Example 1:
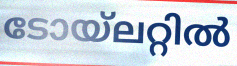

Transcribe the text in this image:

ടോയ്ലറ്റിൽ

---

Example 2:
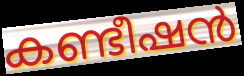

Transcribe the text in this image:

കണ്ടീഷൻ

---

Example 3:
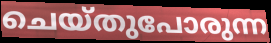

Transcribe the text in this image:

ചെയ്തുപോരുന്ന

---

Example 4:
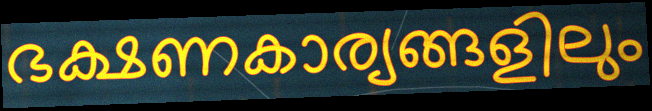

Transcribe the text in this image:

ഭക്ഷണകാര്യങ്ങളിലും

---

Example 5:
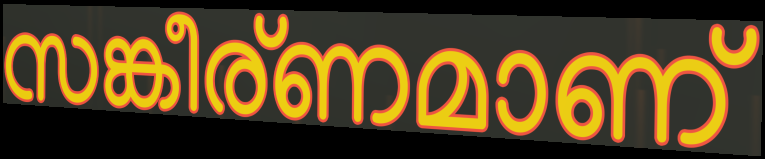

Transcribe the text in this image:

സങ്കീര്ണമാണ്